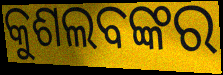
କୁଶଲବଙ୍କର